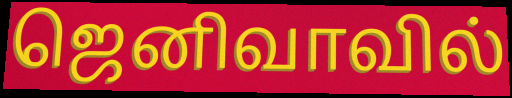
ஜெனிவாவில்